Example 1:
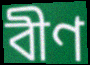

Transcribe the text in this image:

বীণ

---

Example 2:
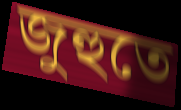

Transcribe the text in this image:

জুহুতে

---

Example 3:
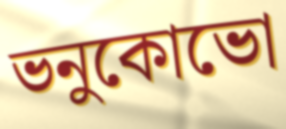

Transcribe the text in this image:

ভনুকোভো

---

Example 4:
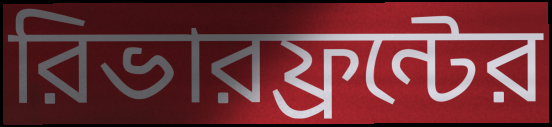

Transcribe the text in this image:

রিভারফ্রন্টের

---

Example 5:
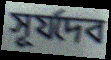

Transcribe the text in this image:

সূর্যদেব